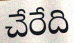
చేరేది